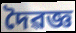
দৈৱজ্ঞ